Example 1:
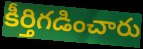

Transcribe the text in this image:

కీర్తిగడించారు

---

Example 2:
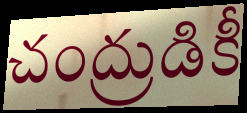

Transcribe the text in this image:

చంద్రుడికీ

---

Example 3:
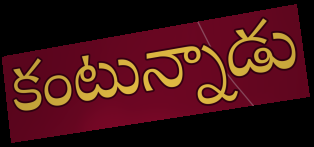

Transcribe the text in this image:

కంటున్నాడు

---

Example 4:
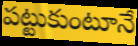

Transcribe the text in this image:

పట్టుకుంటూనే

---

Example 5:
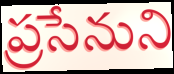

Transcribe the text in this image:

ప్రసేనుని